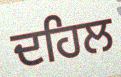
ਦਹਿਲ